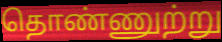
தொண்ணுற்று